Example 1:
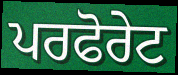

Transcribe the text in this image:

ਪਰਫੋਰੇਟ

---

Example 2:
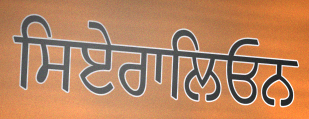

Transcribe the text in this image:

ਸਿਏਰਾਲਿਓਨ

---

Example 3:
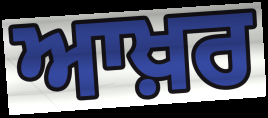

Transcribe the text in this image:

ਆਖ਼ਰ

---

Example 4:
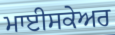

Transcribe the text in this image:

ਮਾਈਸਕੇਅਰ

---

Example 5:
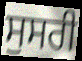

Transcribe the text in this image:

ਸੁਸਰੀ